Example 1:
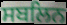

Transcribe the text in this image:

ਸਬਲਿਨ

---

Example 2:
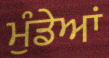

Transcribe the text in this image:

ਮੁੰਡੇਆਂ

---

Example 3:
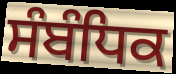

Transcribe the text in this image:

ਸੰਬੰਧਿਕ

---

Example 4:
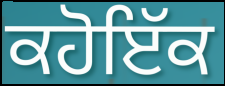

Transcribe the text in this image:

ਕਹੋਇੱਕ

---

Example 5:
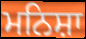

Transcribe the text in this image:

ਮਨਿਸ਼ਾ